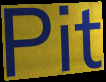
Pit